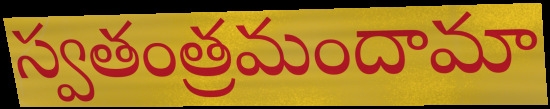
స్వతంత్రమందామా